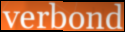
verbond